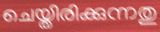
ചെയ്തിരിക്കുന്നതു